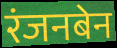
रंजनबेन